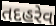
તદહરેવ